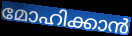
മോഹിക്കാൻ